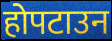
होपटाउन